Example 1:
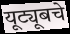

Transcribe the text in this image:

यूट्यूबचे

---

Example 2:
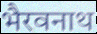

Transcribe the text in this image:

भैरवनाथ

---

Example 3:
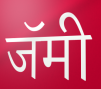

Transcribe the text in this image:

जॅमी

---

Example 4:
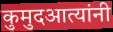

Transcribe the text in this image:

कुमुदआत्यांनी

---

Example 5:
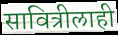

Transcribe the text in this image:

सावित्रीलाही